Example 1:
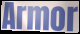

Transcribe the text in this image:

Armor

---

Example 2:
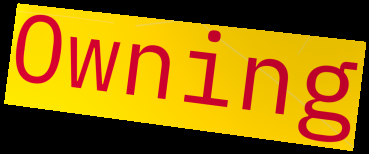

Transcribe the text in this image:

Owning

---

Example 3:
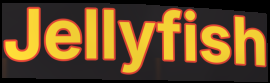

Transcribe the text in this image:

Jellyfish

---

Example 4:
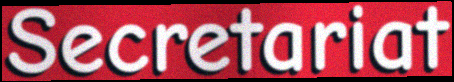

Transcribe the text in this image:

Secretariat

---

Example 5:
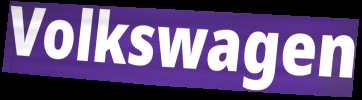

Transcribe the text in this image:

Volkswagen